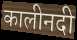
कालीनदी